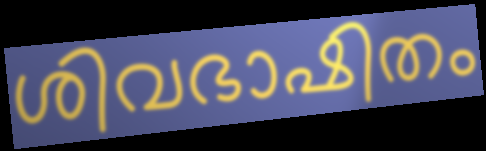
ശിവഭാഷിതം